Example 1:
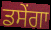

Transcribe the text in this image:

ਡਸੇਂਗਾ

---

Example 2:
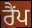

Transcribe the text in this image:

ਰੈਂਪ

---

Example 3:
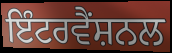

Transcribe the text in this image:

ਇੰਟਰਵੈਂਸ਼ਨਲ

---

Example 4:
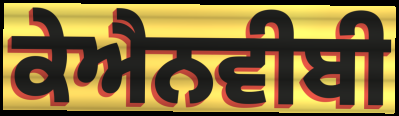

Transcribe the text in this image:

ਕੇਐਨਵੀਬੀ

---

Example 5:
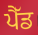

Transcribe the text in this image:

ਪੈੱਡ